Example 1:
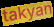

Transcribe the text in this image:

takyan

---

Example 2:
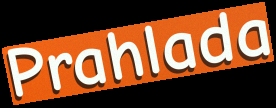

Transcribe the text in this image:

Prahlada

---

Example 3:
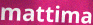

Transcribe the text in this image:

mattima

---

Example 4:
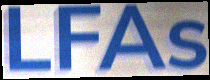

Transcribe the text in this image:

LFAs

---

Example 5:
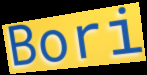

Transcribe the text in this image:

Bori